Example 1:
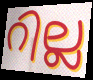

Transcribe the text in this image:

റില്ല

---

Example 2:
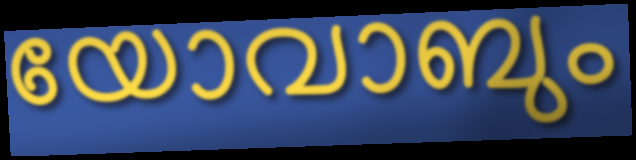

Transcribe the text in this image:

യോവാബും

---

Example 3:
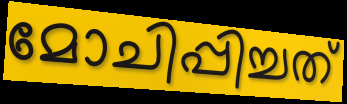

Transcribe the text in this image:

മോചിപ്പിച്ചത്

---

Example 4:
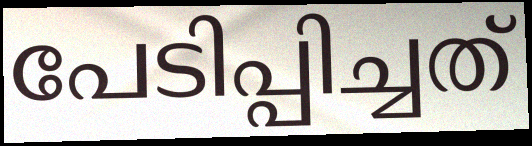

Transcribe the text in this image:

പേടിപ്പിച്ചത്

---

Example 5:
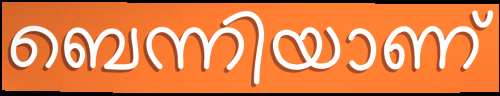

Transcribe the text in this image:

ബെന്നിയാണ്